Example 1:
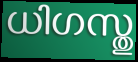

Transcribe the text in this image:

ധിഗസ്തു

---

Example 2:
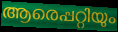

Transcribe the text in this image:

ആരെപ്പറ്റിയും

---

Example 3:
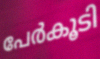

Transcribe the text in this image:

പേർകൂടി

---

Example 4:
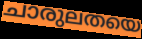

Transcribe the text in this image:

ചാരുലതയെ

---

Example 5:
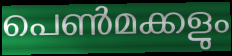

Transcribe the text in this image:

പെൺമക്കളും